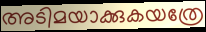
അടിമയാക്കുകയത്രേ